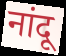
नांदू